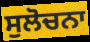
ਸੁਲੋਚਨਾ